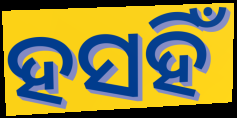
ହସହିଁ